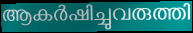
ആകർഷിച്ചുവരുത്തി